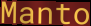
Manto